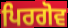
ਪਿਰਗੋਵ